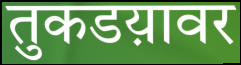
तुकडय़ावर